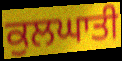
ਕੁਲਘਾਤੀ